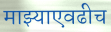
माझ्याएवढीच